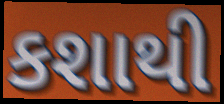
કશાથી